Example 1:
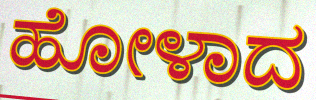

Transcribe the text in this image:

ಹೋಳಾದ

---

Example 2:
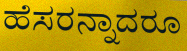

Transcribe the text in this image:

ಹೆಸರನ್ನಾದರೂ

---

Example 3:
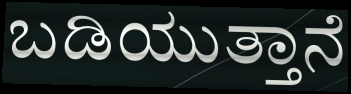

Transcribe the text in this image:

ಬಡಿಯುತ್ತಾನೆ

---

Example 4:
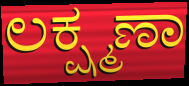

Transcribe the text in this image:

ಲಕ್ಷ್ಮಣಾ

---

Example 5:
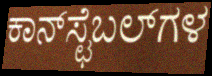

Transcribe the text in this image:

ಕಾನ್‌ಸ್ಟೆಬಲ್‌ಗಳ